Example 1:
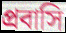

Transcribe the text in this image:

প্রবাসি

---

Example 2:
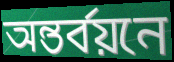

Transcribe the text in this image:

অন্তর্বয়নে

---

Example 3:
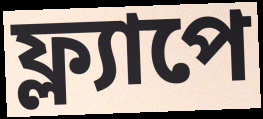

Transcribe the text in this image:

ফ্ল্যাপে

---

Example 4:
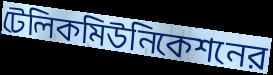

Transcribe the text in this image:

টেলিকমিউনিকেশনের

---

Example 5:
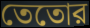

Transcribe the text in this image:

তেতোর